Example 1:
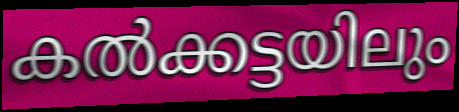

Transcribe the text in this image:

കൽക്കട്ടയിലും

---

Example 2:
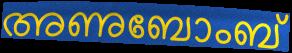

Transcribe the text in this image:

അണുബോംബ്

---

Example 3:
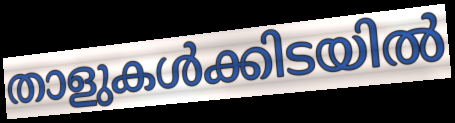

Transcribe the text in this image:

താളുകൾക്കിടയിൽ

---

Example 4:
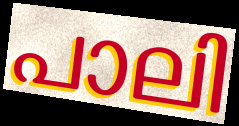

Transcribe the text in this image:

പാലി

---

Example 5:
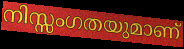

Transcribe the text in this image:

നിസ്സംഗതയുമാണ്